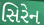
સિરેન